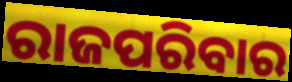
ରାଜପରିବାର